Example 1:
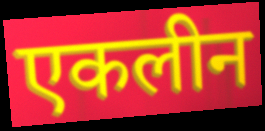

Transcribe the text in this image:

एकलीन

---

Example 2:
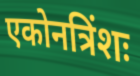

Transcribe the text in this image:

एकोनत्रिंशः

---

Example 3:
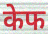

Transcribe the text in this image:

केफ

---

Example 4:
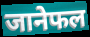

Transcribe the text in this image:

जानेफल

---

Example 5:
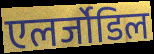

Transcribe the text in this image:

एलर्जोडिल